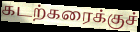
கடற்கரைக்குச்